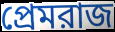
প্রেমরাজ